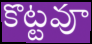
కొట్టవూ